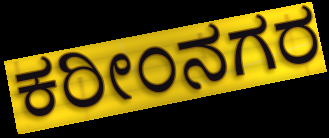
ಕರೀಂನಗರ